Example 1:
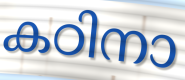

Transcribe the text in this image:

കഠിനാ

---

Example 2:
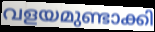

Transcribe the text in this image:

വളയമുണ്ടാക്കി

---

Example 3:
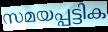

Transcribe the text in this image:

സമയപ്പട്ടിക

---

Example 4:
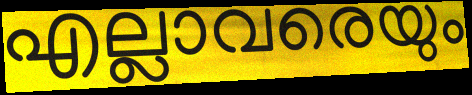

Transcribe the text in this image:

എല്ലാവരെയും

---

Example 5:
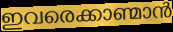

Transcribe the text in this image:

ഇവരെക്കാണ്മാൻ